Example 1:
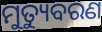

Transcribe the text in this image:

ମୁତ୍ୟୁବରଣ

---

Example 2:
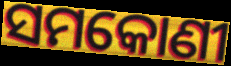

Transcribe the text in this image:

ସମକୋଣୀ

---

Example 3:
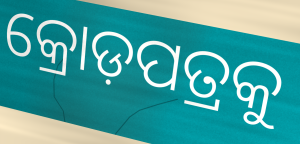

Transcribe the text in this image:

କ୍ରୋଡ଼ପତ୍ରକୁ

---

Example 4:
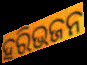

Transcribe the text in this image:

ହରିଭଜନ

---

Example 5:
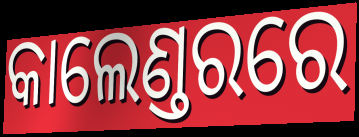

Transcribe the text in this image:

କାଲେଣ୍ଡରରେ